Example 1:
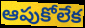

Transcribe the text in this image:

ఆపుకోలేక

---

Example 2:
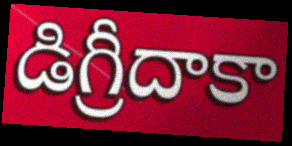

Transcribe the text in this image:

డిగ్రీదాకా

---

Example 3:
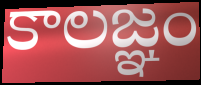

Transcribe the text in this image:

కాలజ్ఞం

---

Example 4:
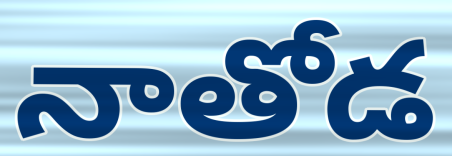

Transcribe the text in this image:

నాతోడ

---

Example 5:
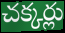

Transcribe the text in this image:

చక్కర్లు